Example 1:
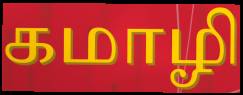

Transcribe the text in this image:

கமாழி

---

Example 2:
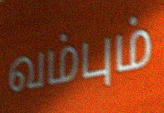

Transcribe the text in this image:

வம்பும்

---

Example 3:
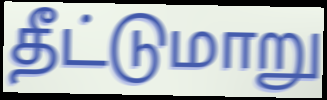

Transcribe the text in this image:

தீட்டுமாறு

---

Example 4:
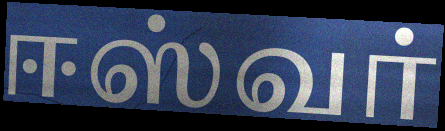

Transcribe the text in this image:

ஈஸ்வர்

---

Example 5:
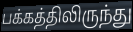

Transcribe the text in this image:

பக்கத்திலிருந்து